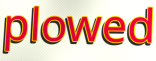
plowed